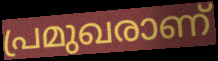
പ്രമുഖരാണ്